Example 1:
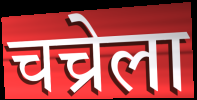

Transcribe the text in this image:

चच्रेला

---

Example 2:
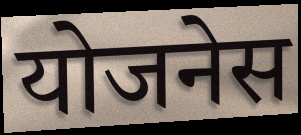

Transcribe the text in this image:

योजनेस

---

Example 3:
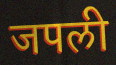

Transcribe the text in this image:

जपली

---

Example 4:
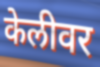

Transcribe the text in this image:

केलीवर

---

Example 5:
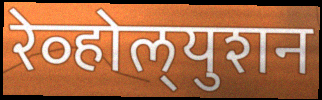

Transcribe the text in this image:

रेव्होल्युशन